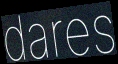
dares